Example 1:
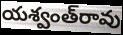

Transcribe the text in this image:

యశ్వంత్‌రావు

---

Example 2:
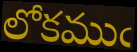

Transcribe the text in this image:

లోకముఁ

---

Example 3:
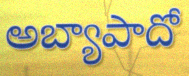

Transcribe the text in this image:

అబ్యాపాదో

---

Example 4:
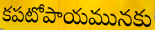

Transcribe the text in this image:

కపటోపాయమునకు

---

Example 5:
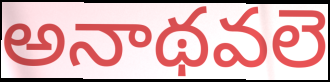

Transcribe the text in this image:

అనాథవలె